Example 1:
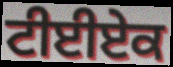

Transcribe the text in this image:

ਟੀਈਏਕ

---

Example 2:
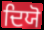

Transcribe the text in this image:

ਦਿਯੋ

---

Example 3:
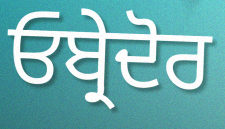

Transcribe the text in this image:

ਓਬ੍ਰੇਦੋਰ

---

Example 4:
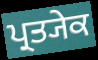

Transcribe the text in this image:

ਪ੍ਰਤ੍ਯੇਕ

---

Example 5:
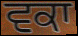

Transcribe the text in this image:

ਵਕਾ